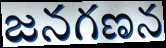
జనగణన